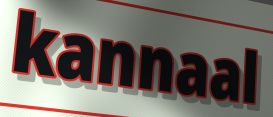
kannaal